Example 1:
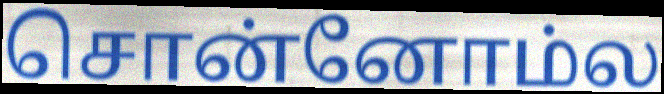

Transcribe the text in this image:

சொன்னோம்ல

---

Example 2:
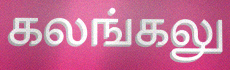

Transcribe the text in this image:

கலங்கலு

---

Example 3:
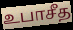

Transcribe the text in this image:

உபாசீத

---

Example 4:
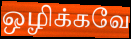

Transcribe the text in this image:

ஒழிக்கவே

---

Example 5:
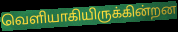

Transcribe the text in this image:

வெளியாகியிருக்கின்றன